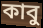
কাবু